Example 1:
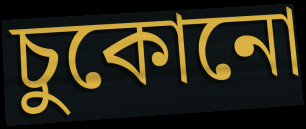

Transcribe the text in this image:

চুকোনো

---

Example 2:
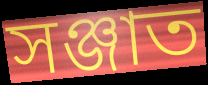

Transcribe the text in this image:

সঞ্জাত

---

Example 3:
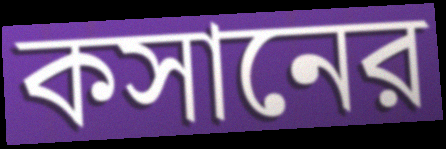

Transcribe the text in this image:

কসানের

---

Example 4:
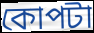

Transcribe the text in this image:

কোপটা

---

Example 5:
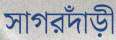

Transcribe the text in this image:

সাগরদাঁড়ী